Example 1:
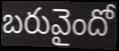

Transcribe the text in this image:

బరువైందో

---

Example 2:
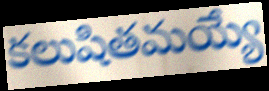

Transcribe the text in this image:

కలుషితమయ్యే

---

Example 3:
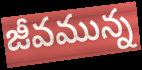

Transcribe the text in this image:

జీవమున్న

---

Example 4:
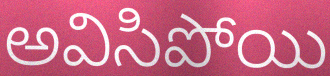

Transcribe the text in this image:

అవిసిపోయి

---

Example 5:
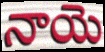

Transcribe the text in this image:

నాయె